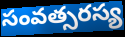
సంవత్సరస్య